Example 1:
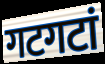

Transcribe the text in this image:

गटगटां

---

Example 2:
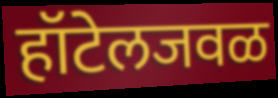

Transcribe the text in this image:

हॉटेलजवळ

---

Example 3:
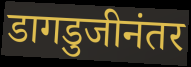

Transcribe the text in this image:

डागडुजीनंतर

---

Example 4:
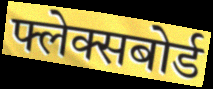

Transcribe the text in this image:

फ्लेक्सबोर्ड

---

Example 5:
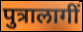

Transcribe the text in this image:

पुत्रालागीं